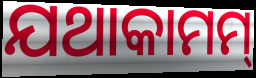
ଯଥାକାମମ୍